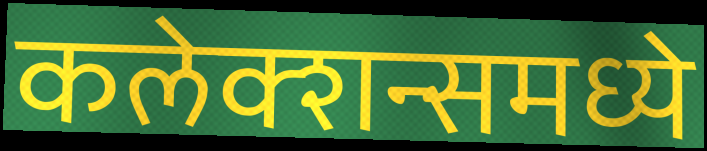
कलेक्शन्समध्ये